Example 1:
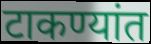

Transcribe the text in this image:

टाकण्यांत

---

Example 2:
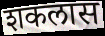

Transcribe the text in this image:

शकलास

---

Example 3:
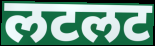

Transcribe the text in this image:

लटलट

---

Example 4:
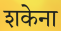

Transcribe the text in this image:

शकेना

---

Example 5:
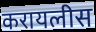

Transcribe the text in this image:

करायलीस